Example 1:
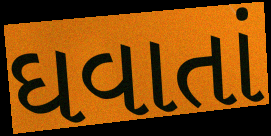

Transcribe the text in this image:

ઘવાતાં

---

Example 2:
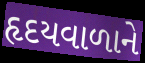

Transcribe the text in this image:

હૃદયવાળાને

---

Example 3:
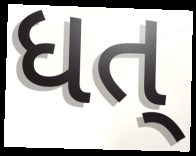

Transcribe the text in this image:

ધત્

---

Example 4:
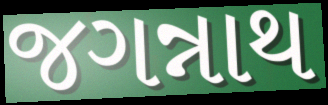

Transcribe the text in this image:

જગન્નાથ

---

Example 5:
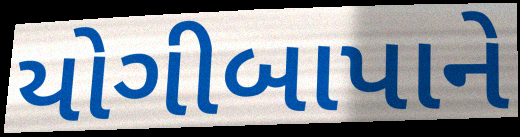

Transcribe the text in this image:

યોગીબાપાને